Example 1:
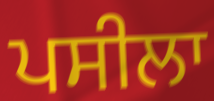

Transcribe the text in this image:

ਪਸੀਲਾ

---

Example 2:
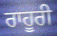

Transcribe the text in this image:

ਰਾਹੂਰੀ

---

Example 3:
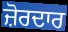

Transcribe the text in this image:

ਜ਼ੋਰਦਾਰ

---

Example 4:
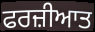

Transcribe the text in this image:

ਫਰਜ਼ੀਆਤ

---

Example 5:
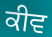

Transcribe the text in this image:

ਕੀਵ